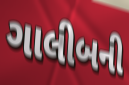
ગાલીબની